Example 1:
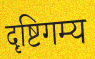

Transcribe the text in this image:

दृष्टिगम्य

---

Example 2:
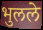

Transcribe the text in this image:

भुलले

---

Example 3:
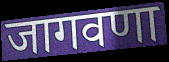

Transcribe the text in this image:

जागवणा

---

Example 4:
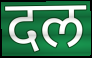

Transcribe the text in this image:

दल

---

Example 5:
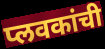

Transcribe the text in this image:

प्लवकांची